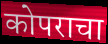
कोपराचा